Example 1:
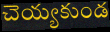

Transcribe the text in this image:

చెయ్యకుండ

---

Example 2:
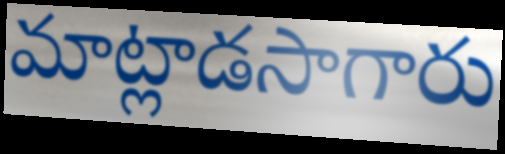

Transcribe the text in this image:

మాట్లాడసాగారు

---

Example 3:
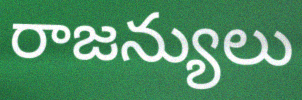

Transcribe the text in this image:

రాజన్యులు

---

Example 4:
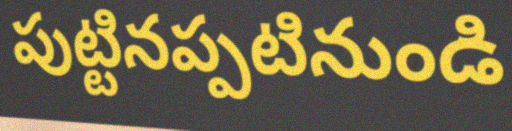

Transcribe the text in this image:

పుట్టినప్పటినుండి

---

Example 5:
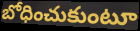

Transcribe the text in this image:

బోధించుకుంటూ